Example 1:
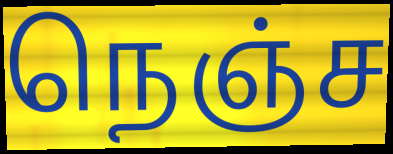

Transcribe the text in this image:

நெஞ்ச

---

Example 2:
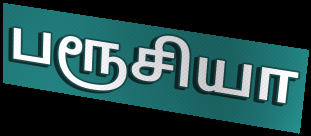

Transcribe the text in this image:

பரூசியா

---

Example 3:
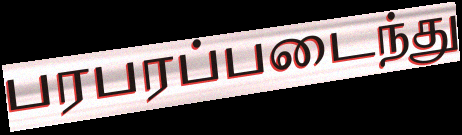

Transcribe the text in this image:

பரபரப்படைந்து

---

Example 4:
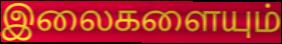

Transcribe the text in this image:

இலைகளையும்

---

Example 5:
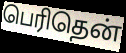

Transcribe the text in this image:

பெரிதென்